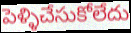
పెళ్ళిచేసుకోలేదు